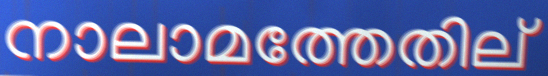
നാലാമത്തേതില്